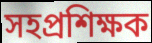
সহপ্রশিক্ষক